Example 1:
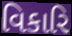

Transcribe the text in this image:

વિકારિ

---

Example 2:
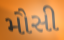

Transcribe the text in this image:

મૌસી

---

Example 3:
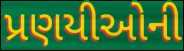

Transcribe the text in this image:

પ્રણયીઓની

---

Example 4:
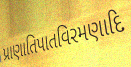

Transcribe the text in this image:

પ્રાણાતિપાતવિરમણાદિ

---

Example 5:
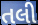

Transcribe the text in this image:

તલી